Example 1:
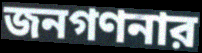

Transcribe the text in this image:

জনগণনার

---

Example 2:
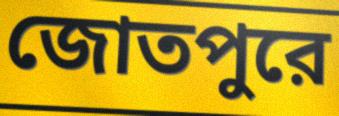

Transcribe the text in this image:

জোতপুরে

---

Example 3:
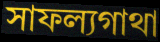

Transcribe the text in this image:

সাফল্যগাথা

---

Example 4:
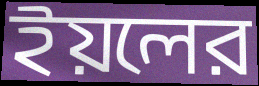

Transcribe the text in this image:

ইয়লের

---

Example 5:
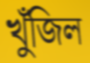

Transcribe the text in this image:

খুঁজিল